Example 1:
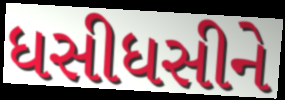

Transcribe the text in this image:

ધસીધસીને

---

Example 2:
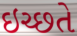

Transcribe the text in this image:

ઇચ્છતે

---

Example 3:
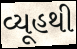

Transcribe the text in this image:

વ્યૂહથી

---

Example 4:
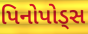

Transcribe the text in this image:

પિનોપોડ્સ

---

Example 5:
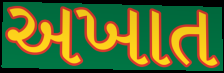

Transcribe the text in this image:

અખાત